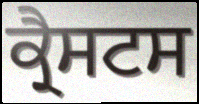
ਕ੍ਰੈਸਟਸ